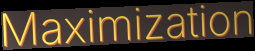
Maximization